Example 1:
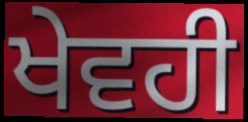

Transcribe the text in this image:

ਖੇਵਹੀ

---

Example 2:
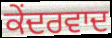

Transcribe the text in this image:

ਕੇਂਦਰਵਾਦ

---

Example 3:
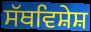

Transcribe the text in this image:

ਸੱਥਵਿਸ਼ੇਸ਼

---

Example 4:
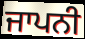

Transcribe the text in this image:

ਜਾਪਨੀ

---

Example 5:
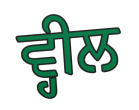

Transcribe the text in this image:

ਵ੍ਹੀਲ